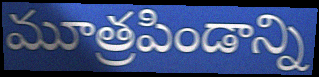
మూత్రపిండాన్ని